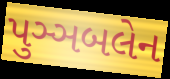
પુઞ્ઞબલેન